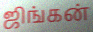
ஜிங்கன்